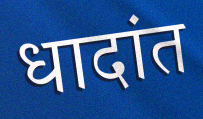
धादांत